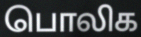
பொலிக